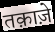
तक़ाज़े